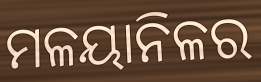
ମଳୟାନିଳର